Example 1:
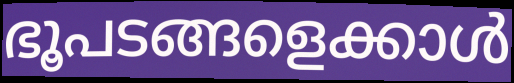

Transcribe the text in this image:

ഭൂപടങ്ങളെക്കാൾ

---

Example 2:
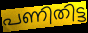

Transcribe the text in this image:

പണിതിട്ട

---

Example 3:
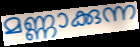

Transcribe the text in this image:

മണ്ണാക്കുന്ന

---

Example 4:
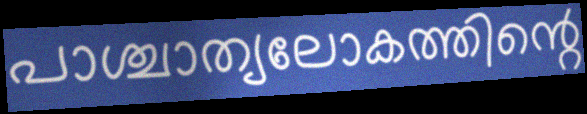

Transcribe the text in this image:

പാശ്ചാത്യലോകത്തിന്റെ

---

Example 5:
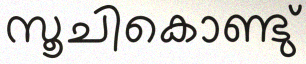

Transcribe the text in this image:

സൂചികൊണ്ടു്